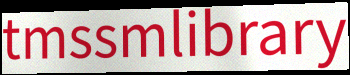
tmssmlibrary